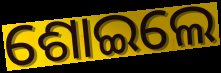
ଶୋଇଲେ